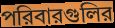
পরিবারগুলির